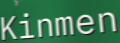
Kinmen